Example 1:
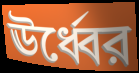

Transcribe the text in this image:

ঊর্ধ্বের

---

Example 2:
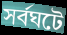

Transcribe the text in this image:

সর্বঘটে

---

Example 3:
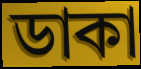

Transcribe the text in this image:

ডাকা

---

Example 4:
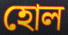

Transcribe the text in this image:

হোল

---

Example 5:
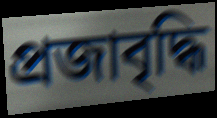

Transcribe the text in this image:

প্রজাবৃদ্ধি